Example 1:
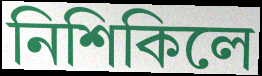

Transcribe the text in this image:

নিশিকিলে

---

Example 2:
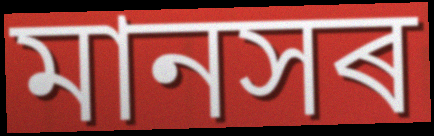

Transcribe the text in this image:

মানসৰ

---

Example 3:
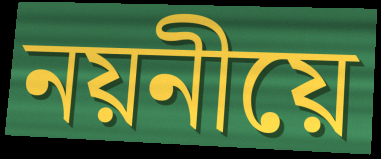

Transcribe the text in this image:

নয়নীয়ে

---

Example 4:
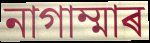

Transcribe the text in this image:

নাগাম্মাৰ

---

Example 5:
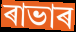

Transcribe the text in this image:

ৰাভাৰ